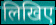
लिखिए